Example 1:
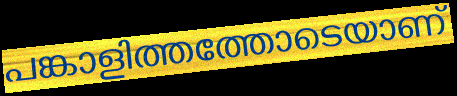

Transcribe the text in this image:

പങ്കാളിത്തത്തോടെയാണ്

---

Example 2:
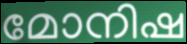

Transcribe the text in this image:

മോനിഷ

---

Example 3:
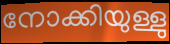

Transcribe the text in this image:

നോക്കിയുള്ളു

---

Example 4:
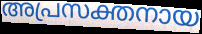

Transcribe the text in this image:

അപ്രസക്തനായ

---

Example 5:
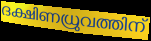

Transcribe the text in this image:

ദക്ഷിണധ്രുവത്തിന്